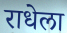
राधेला